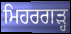
ਮਿਹਰਗੜ੍ਹ